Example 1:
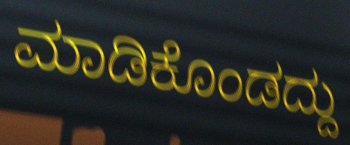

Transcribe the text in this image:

ಮಾಡಿಕೊಂಡದ್ದು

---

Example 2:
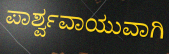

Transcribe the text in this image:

ಪಾರ್ಶ್ವವಾಯುವಾಗಿ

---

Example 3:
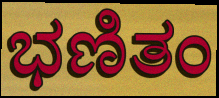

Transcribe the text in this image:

ಭಣಿತಂ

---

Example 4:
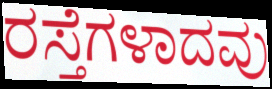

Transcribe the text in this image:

ರಸ್ತೆಗಳಾದವು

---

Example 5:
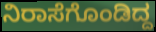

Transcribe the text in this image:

ನಿರಾಸೆಗೊಂಡಿದ್ದ